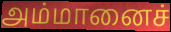
அம்மானைச்